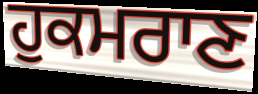
ਹੁਕਮਰਾਣ